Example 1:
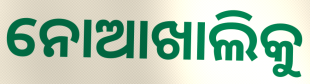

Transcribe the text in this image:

ନୋଆଖାଲିକୁ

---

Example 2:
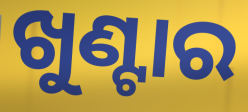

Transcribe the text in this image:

ଖୁଣ୍ଟାର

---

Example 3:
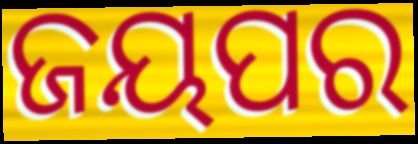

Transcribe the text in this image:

ଜୟପର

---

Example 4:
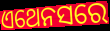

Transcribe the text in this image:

ଏଥେନସରେ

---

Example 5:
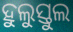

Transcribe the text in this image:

ହୁଲୁସ୍ତୁଲ